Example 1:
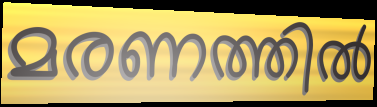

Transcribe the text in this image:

മരണത്തിൽ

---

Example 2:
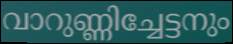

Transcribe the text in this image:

വാറുണ്ണിച്ചേട്ടനും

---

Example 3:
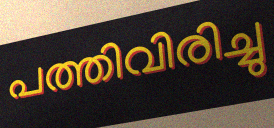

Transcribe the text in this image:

പത്തിവിരിച്ചു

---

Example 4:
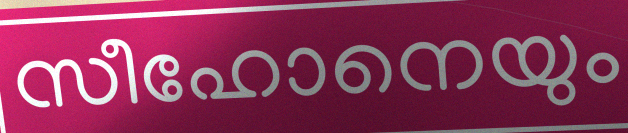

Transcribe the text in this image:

സീഹോനെയും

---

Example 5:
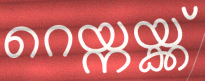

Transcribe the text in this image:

റെയ്നയ്ക്ക്